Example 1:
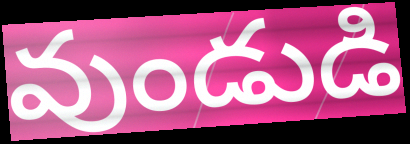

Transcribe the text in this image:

వుండుడి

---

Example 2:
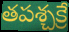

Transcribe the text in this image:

తపశ్చక్రే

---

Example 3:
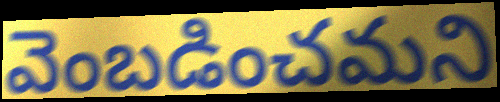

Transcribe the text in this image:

వెంబడించమని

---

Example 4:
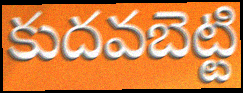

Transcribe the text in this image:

కుదవబెట్టి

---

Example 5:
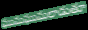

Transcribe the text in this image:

ఘుమఘుమలాడుతూ